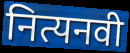
नित्यनवी